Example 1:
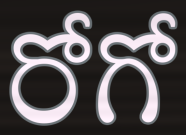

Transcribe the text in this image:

రోగో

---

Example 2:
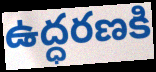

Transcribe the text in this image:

ఉద్ధరణకి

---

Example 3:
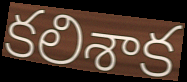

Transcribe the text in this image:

కలిశాక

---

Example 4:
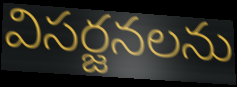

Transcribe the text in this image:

విసర్జనలను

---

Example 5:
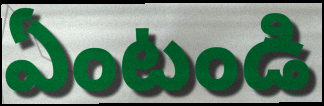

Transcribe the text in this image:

ఏంటండి